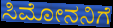
ಸಿಮೋನನಿಗೆ